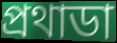
প্রথাডা